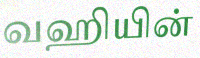
வஹியின்